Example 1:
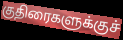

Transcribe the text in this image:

குதிரைகளுக்குச்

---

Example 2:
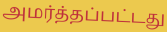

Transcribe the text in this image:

அமர்த்தப்பட்டது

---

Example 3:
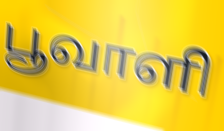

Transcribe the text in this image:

பூவாளி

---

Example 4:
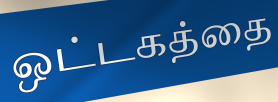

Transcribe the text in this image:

ஒட்டகத்தை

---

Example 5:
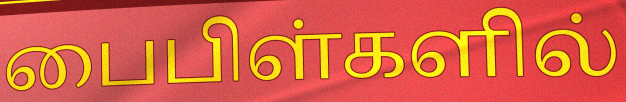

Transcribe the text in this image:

பைபிள்களில்